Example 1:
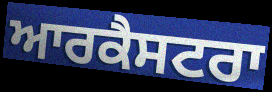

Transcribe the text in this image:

ਆਰਕੈਸਟਰਾ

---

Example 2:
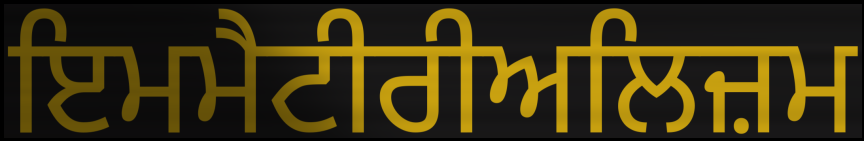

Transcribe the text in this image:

ਇਮਮੈਟੀਰੀਅਲਿਜ਼ਮ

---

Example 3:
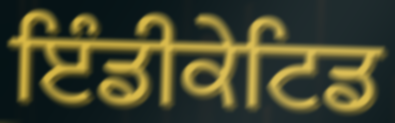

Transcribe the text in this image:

ਇੰਡੀਕੇਟਿਡ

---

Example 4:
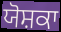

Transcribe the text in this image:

ਯੋਸ਼ਕਾ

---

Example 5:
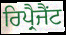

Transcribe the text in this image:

ਰਿਪ੍ਰੈਜੈਂਟ